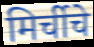
मिर्चीचे